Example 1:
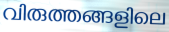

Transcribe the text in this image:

വിരുത്തങ്ങളിലെ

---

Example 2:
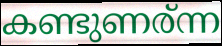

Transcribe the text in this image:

കണ്ടുണര്ന്ന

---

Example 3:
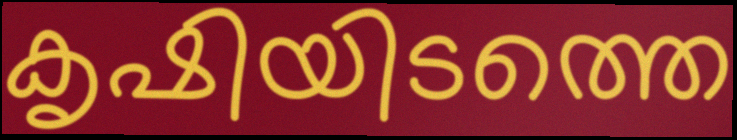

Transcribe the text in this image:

കൃഷിയിടത്തെ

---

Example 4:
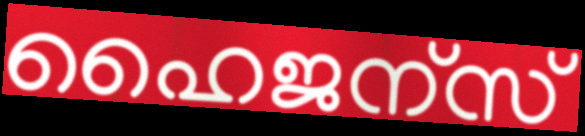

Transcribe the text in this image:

ഹൈജന്സ്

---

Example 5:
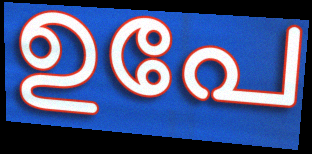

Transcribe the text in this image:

ഉപേ